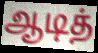
ஆடித்